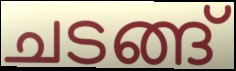
ചടങ്ങ്